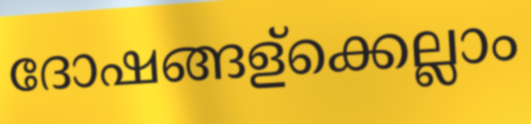
ദോഷങ്ങള്ക്കെല്ലാം